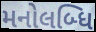
મનોલબ્ધિ